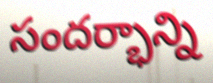
సందర్భాన్ని